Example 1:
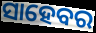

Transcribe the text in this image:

ସାହେବର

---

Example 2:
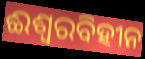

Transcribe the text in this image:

ଈଶ୍ୱରବିହୀନ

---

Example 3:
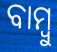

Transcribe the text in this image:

ବାମ୍ବୁ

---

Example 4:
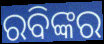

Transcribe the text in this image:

ରବିଙ୍କର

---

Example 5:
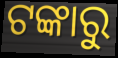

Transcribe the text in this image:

ଟଙ୍କାରୁ